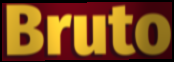
Bruto